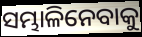
ସମ୍ଭାଳିନେବାକୁ